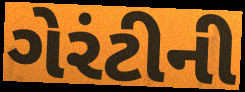
ગેરંટીની